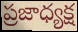
ప్రజాధ్యక్ష